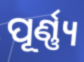
ପୂର୍ଣ୍ଣ୍ୟ